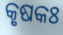
କୃଷକଃ